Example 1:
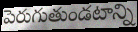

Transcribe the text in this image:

పెరుగుతుండటాన్ని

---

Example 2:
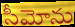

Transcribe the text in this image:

సీమోను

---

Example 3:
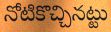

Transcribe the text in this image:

నోటికొచ్చినట్టు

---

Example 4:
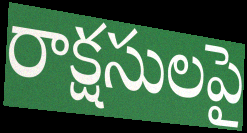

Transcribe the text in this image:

రాక్షసులపై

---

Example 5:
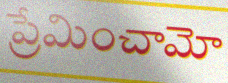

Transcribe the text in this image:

ప్రేమించామో